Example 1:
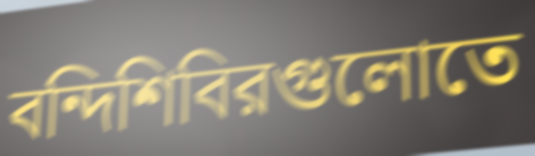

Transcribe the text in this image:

বন্দিশিবিরগুলোতে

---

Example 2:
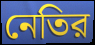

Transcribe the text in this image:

নেতির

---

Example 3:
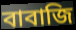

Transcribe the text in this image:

বাবাজি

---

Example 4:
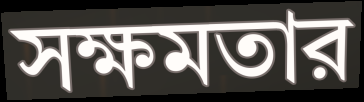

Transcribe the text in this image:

সক্ষমতার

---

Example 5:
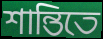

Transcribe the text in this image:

শান্তিতে